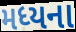
મધ્યના